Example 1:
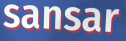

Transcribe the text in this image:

sansar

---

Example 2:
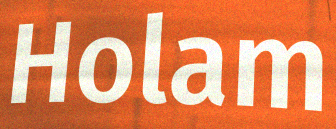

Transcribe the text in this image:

Holam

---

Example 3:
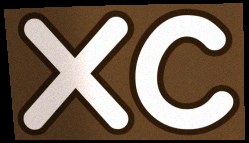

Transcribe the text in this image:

xc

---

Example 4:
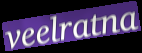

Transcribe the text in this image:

veelratna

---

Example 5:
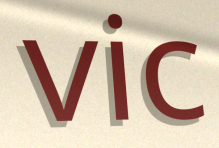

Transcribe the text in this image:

vic